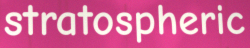
stratospheric